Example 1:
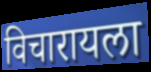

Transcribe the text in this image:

विचारायला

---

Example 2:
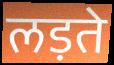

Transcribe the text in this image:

लड़ते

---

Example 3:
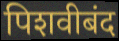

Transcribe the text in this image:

पिशवीबंद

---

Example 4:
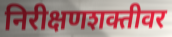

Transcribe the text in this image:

निरीक्षणशक्तीवर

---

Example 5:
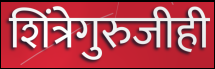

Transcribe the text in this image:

शिंत्रेगुरुजीही